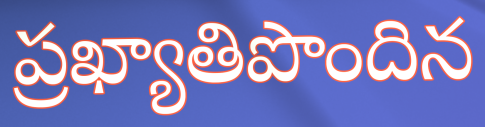
ప్రఖ్యాతిపొందిన